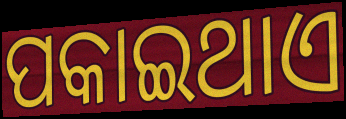
ପକାଇଥାଏ